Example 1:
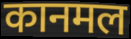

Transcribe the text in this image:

कानमल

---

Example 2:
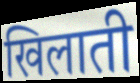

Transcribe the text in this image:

खिलाती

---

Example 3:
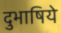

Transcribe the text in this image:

दुभाषिये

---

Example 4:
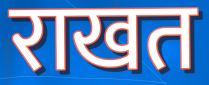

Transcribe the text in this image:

राखत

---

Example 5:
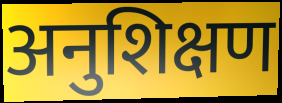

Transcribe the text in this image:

अनुशिक्षण